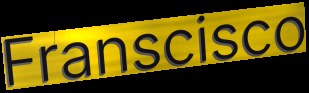
Franscisco